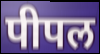
पीपल